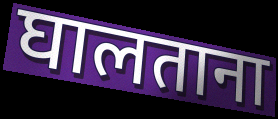
घालताना